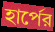
হার্পের